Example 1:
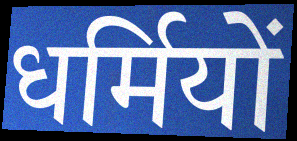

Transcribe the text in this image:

धर्मियों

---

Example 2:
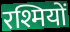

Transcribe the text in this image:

रश्मियों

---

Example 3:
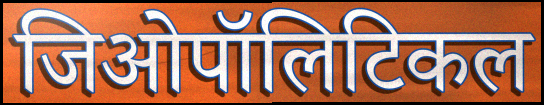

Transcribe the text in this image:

जिओपॉलिटिकल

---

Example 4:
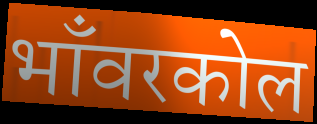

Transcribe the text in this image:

भाँवरकोल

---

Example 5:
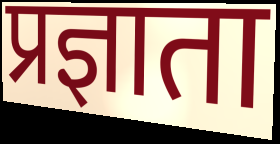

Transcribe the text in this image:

प्रज्ञाता